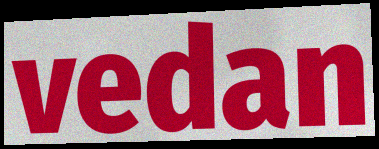
vedan